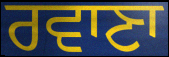
ਰਵਾਣਾ